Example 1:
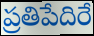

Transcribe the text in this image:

ప్రతిపేదిరే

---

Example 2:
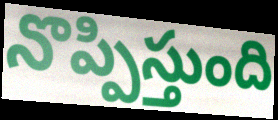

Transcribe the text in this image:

నొప్పిస్తుంది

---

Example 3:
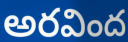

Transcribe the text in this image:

అరవింద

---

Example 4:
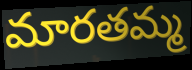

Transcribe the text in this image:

మారతమ్మ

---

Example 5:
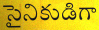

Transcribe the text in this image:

సైనికుడిగా